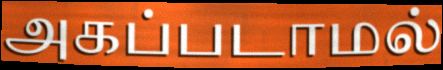
அகப்படாமல்